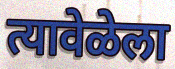
त्यावेळेला